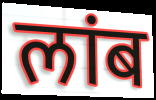
लांब